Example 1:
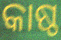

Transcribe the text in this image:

କାଷ୍ଠ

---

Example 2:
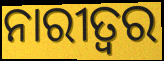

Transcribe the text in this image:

ନାରୀତ୍ଵର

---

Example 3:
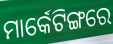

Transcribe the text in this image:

ମାର୍କେଟିଙ୍ଗରେ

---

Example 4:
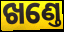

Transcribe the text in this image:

ଖଣ୍ତେ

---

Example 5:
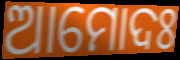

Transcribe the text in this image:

ଆମୋଦଃ